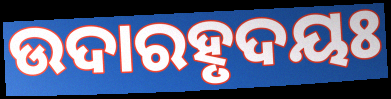
ଉଦାରହୃଦୟଃ